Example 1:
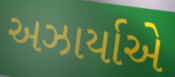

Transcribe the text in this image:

અઝાર્યાએ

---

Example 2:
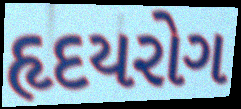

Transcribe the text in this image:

હૃદયરોગ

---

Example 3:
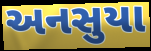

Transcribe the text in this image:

અનસુયા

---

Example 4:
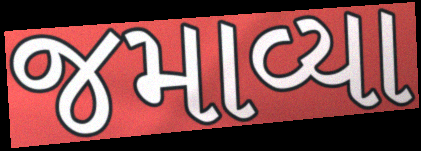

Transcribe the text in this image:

જમાવ્યા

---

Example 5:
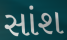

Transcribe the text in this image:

સાંશ